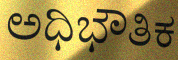
ಅಧಿಭೌತಿಕ